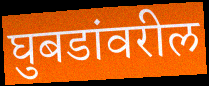
घुबडांवरील